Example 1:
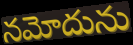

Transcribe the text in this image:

నమోదును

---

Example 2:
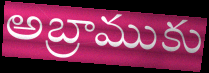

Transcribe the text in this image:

అబ్రాముకు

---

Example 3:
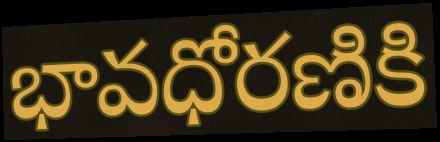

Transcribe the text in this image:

భావధోరణికి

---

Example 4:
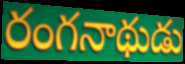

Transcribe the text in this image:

రంగనాథుడు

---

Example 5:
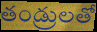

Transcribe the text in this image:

తండ్రులతో